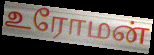
உரோமன்